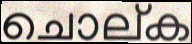
ചൊല്ക